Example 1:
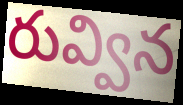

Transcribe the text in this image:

రువ్విన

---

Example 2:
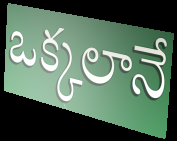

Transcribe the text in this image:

ఒక్కలానే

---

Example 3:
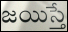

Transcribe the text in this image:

జయిస్తే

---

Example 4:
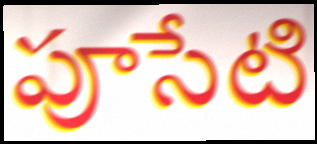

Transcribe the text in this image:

పూసేటి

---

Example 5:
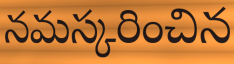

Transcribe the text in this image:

నమస్కరించిన